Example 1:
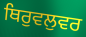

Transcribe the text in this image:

ਥਿਰੁਵਲੁਵਰ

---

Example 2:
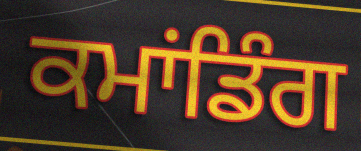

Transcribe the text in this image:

ਕਮਾਂਡਿੰਗ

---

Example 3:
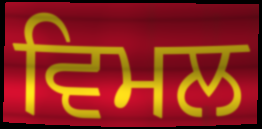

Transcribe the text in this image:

ਵਿਮਲ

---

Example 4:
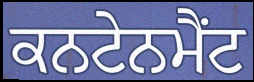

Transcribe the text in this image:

ਕਨਟੇਨਮੈਂਟ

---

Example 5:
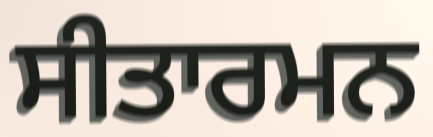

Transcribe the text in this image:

ਸੀਤਾਰਮਨ